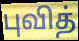
புவித்